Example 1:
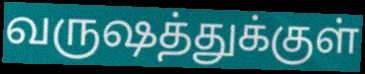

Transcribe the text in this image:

வருஷத்துக்குள்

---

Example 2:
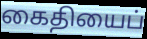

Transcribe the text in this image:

கைதியைப்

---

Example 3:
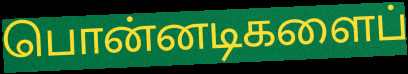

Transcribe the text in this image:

பொன்னடிகளைப்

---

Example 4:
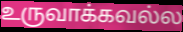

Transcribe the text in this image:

உருவாக்கவல்ல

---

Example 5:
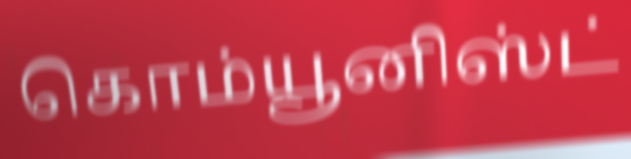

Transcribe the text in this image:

கொம்யூனிஸ்ட்